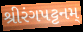
શ્રીરંગપટ્ટનમ્